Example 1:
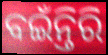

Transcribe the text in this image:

ବଇଁନ୍ତିରି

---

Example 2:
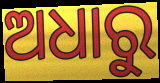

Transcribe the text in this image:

ଅଧାରୁ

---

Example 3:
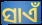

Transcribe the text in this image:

ସାଏଁ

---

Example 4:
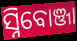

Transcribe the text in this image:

ସ୍ନିବୋଞ୍ଜା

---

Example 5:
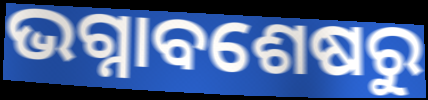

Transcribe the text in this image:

ଭଗ୍ନାବଶେଷରୁ